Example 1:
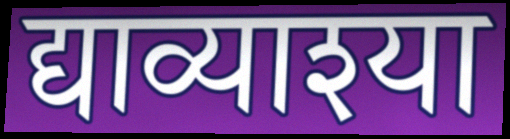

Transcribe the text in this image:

द्याव्याश्या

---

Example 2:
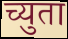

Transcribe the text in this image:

च्युता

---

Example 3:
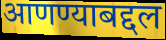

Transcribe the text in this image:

आणण्याबद्दल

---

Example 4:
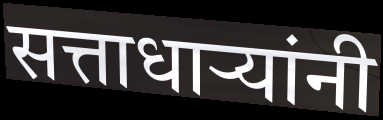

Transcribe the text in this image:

सत्ताधाऱ्यांनी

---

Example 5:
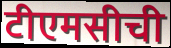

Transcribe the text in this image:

टीएमसीची